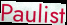
Paulist